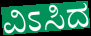
ವಿಽಸಿದ